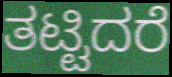
ತಟ್ಟಿದರೆ